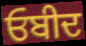
ਓਬੀਦ